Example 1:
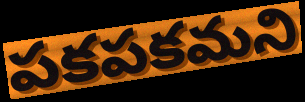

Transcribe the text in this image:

పకపకమని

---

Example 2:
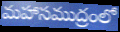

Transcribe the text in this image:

మహాసముద్రంలో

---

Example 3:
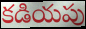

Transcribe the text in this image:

కడియపు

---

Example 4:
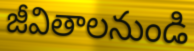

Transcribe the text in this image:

జీవితాలనుండి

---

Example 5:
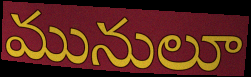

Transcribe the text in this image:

మునులూ